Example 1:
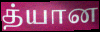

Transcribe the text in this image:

த்யான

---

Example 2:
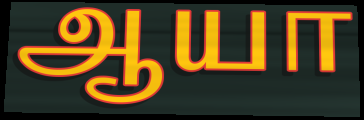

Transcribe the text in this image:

ஆயா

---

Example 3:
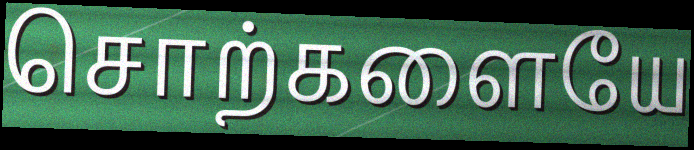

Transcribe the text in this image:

சொற்களையே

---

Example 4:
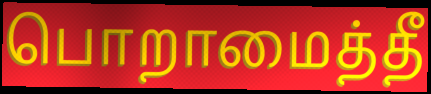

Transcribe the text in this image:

பொறாமைத்தீ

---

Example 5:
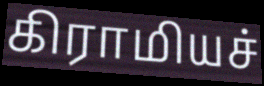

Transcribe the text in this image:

கிராமியச்